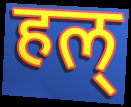
हल्